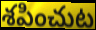
శపించుట